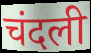
चंदली